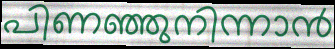
പിണഞ്ഞുനിന്നാൻ